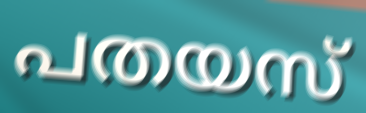
പതയസ്